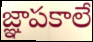
జ్ఞాపకాలే